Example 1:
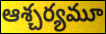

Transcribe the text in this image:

ఆశ్చర్యమూ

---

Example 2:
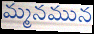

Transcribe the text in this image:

మ్మనమున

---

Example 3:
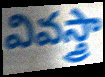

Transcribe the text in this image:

వివస్త్రా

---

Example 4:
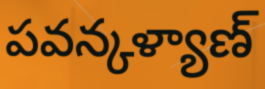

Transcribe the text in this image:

పవన్కళ్యాణ్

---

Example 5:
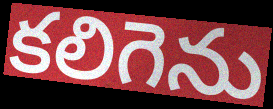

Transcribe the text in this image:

కలిగెను